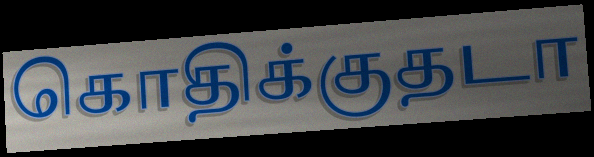
கொதிக்குதடா